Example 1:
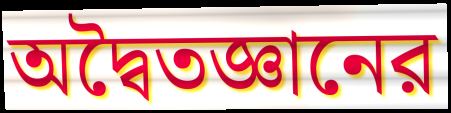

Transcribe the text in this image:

অদ্বৈতজ্ঞানের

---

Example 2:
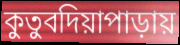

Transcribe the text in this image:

কুতুবদিয়াপাড়ায়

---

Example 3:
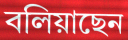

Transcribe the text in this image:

বলিয়াছেন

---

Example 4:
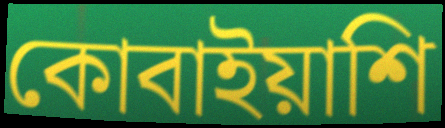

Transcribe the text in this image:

কোবাইয়াশি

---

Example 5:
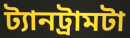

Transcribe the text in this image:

ট্যানট্রামটা